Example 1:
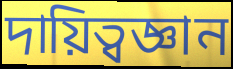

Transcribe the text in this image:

দায়িত্বজ্ঞান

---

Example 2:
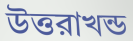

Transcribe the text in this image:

উত্তরাখন্ড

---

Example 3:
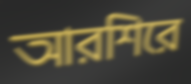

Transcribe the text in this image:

আরশিরে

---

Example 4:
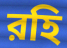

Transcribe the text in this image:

রহি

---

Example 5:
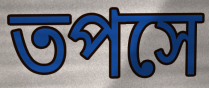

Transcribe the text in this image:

তপসে